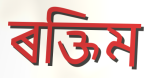
ৰক্তিম